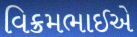
વિક્રમભાઈએ